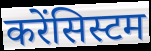
करेंसिस्टम